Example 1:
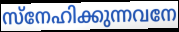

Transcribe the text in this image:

സ്നേഹിക്കുന്നവനേ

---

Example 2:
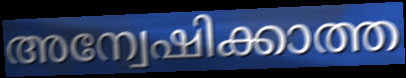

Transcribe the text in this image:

അന്വേഷിക്കാത്ത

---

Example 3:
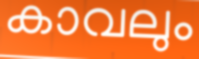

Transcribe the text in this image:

കാവലും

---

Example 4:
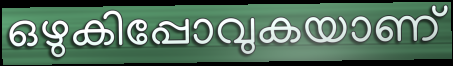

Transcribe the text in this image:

ഒഴുകിപ്പോവുകയാണ്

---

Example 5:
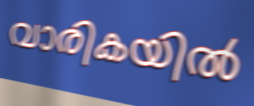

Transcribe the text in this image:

വാരികയിൽ